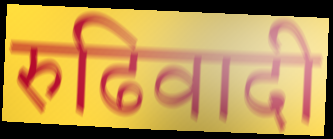
रुढिवादी